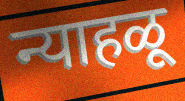
न्याहळू